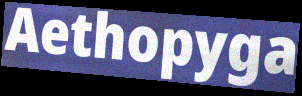
Aethopyga